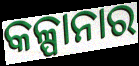
କଳ୍ପାନାର